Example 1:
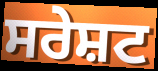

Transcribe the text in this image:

ਸਰੇਸ਼ਟ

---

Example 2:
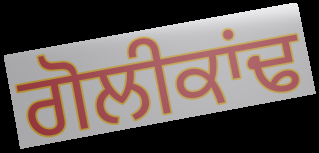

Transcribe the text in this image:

ਗੋਲੀਕਾਂਢ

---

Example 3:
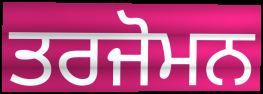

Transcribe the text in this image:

ਤਰਜੋਮਨ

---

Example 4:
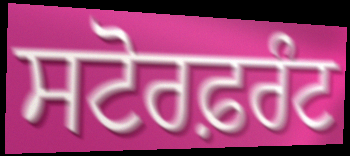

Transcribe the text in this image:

ਸਟੋਰਫ਼ਰੰਟ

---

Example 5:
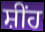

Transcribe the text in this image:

ਸ਼ੀਂਹ